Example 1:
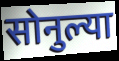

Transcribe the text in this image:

सोनुल्या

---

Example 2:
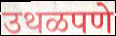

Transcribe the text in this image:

उथळपणे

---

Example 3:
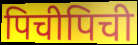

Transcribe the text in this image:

पिचीपिची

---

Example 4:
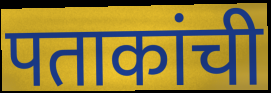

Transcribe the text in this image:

पताकांची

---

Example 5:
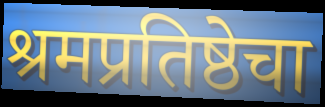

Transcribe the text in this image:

श्रमप्रतिष्ठेचा